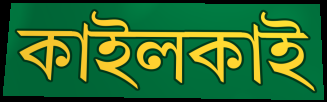
কাইলকাই